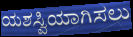
ಯಶಸ್ವಿಯಾಗಿಸಲು